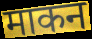
माकन